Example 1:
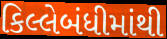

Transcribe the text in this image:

કિલ્લેબંધીમાંથી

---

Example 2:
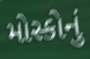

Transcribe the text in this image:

મોસ્કોનું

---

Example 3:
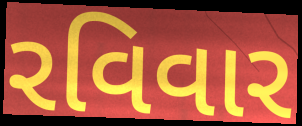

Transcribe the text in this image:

રવિવાર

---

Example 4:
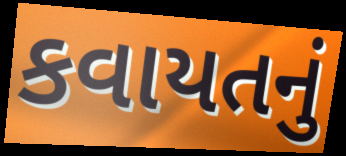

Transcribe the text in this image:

કવાયતનું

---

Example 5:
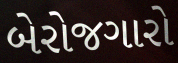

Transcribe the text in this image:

બેરોજગારો